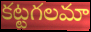
కట్టగలమా